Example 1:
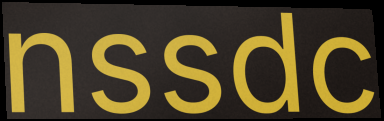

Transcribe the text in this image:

nssdc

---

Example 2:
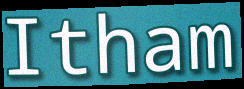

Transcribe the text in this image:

Itham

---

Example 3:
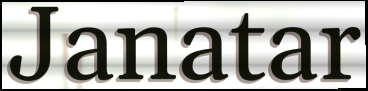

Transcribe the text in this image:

Janatar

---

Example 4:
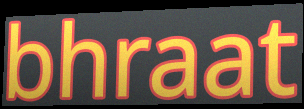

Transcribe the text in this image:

bhraat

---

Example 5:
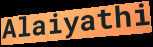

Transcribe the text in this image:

Alaiyathi